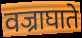
वज्राघाते